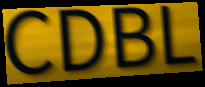
CDBL